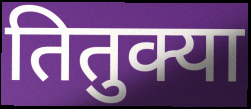
तितुक्या